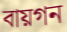
বায়গন